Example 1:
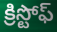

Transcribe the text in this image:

క్రిస్టోఫ్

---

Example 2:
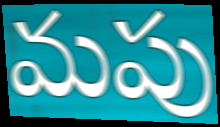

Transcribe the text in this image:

మపు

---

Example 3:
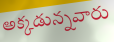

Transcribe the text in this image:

అక్కడున్నవారు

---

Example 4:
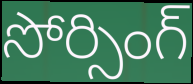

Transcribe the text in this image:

సోర్సింగ్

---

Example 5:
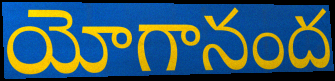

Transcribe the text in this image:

యోగానంద